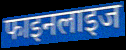
फाइनलाइज